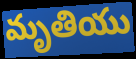
మృతియు